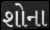
શોના